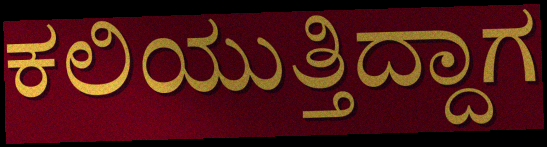
ಕಲಿಯುತ್ತಿದ್ದಾಗ